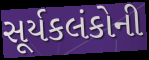
સૂર્યકલંકોની